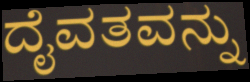
ದೈವತವನ್ನು